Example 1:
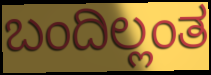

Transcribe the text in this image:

ಬಂದಿಲ್ಲಂತ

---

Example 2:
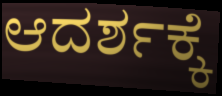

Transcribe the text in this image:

ಆದರ್ಶಕ್ಕೆ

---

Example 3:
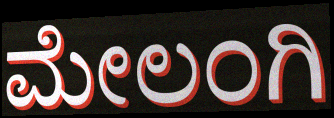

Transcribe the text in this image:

ಮೇಲಂಗಿ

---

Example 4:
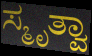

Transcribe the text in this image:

ಸ್ಮೃತ್ವಾ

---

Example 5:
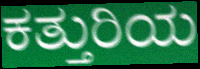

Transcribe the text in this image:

ಕತ್ತುರಿಯ